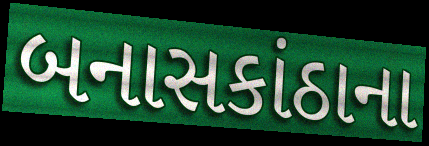
બનાસકાંઠાના